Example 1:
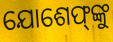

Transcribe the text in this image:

ଯୋଶେଫ୍‌ଙ୍କୁ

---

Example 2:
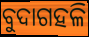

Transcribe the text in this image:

ବୁଦାଗହଳି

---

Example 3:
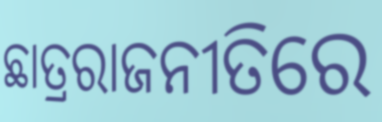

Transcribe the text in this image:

ଛାତ୍ରରାଜନୀତିରେ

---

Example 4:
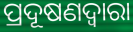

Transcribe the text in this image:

ପ୍ରଦୂଷଣଦ୍ବାରା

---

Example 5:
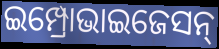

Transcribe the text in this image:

ଇମ୍ପ୍ରୋଭାଇଜେସନ୍